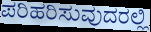
ಪರಿಹರಿಸುವುದರಲ್ಲಿ